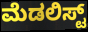
ಮೆಡಲಿಸ್ಟ್